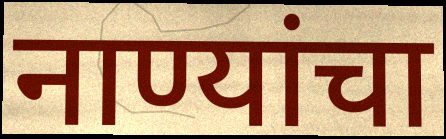
नाण्यांचा